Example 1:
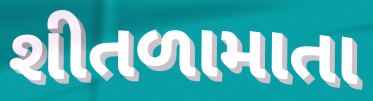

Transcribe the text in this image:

શીતળામાતા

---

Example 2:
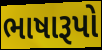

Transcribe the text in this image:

ભાષારૂપો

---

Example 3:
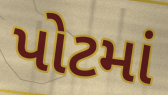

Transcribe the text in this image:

પોટમાં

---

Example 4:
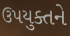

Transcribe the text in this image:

ઉપયુક્તને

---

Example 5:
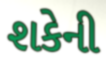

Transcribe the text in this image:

શકેની